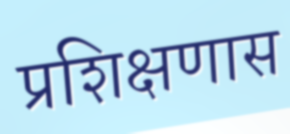
प्रशिक्षणास